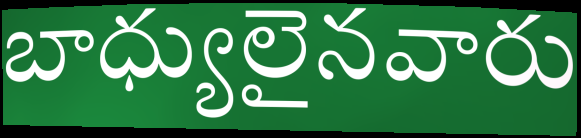
బాధ్యులైనవారు